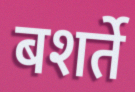
बशर्ते